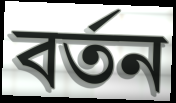
বৰ্তন